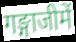
गङ्गाजीमें